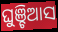
ଘୁଞ୍ଚିଆସ